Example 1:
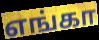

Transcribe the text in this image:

எங்கா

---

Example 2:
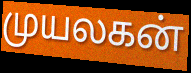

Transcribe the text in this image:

முயலகன்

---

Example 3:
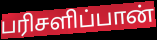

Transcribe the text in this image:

பரிசளிப்பான்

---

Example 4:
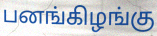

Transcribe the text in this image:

பனங்கிழங்கு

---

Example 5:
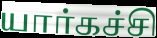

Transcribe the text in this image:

யார்கச்சி